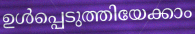
ഉൾപ്പെടുത്തിയേക്കാം